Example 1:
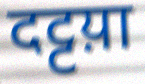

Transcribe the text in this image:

दट्टय़ा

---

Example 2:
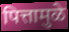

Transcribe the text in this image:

पित्तामुळे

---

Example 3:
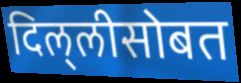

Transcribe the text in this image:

दिल्लीसोबत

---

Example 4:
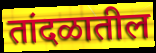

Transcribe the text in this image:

तांदळातील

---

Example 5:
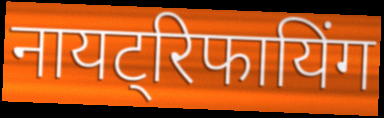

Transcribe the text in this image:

नायट्रिफायिंग